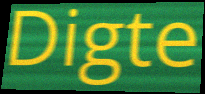
Digte